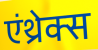
एंथ्रेक्स